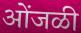
ओंजळी